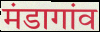
मंडागांव